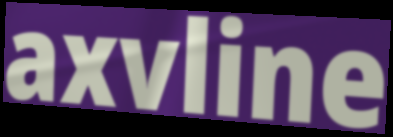
axvline